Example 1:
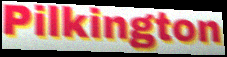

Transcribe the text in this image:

Pilkington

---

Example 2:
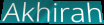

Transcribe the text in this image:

Akhirah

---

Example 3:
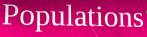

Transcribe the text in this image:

Populations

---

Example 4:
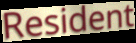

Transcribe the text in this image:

Resident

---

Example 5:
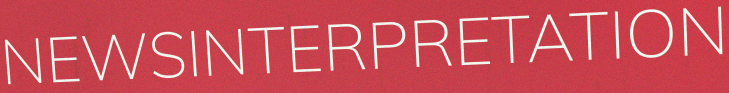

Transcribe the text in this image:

NEWSINTERPRETATION